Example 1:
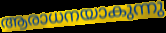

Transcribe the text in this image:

ആരാധനയാകുന്നു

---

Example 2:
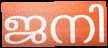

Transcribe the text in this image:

ജനി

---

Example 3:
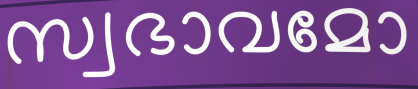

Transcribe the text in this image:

സ്വഭാവമോ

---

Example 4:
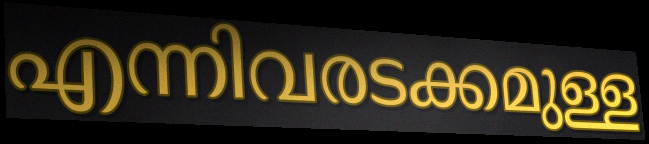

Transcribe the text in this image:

എന്നിവരടക്കമുള്ള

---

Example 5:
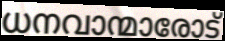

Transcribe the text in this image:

ധനവാന്മാരോട്